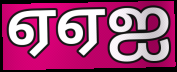
ஏஏஐ